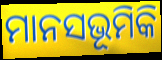
ମାନସଭୂମିକି